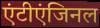
एंटीएंजिनल